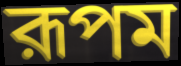
রূপম